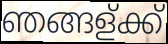
ഞങ്ങള്ക്ക്